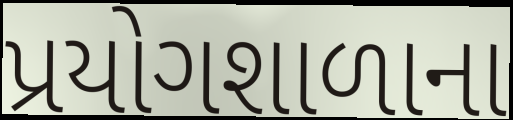
પ્રયોગશાળાના